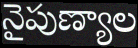
నైపుణ్యాల